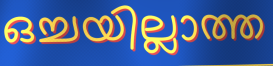
ഒച്ചയില്ലാത്ത